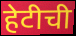
हेटीची